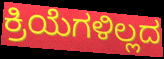
ಕ್ರಿಯೆಗಳಿಲ್ಲದ